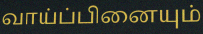
வாய்ப்பினையும்